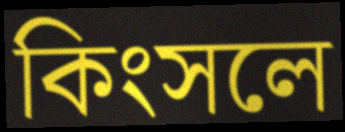
কিংসলে